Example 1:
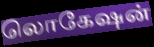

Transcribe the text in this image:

லொகேஷன்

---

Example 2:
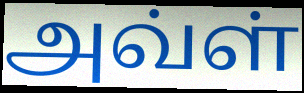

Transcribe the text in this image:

அவ்ள்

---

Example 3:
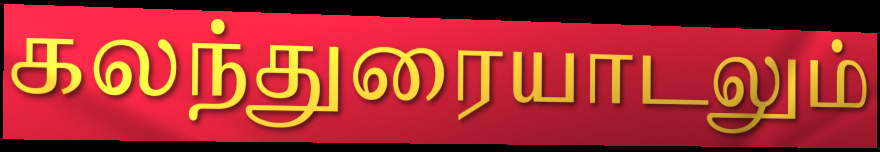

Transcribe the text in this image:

கலந்துரையாடலும்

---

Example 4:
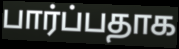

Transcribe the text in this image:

பார்ப்பதாக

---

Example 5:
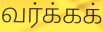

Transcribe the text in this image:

வர்க்கக்